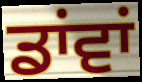
ਡਾਂਵਾਂ